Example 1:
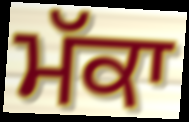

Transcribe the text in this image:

ਮੱਕਾ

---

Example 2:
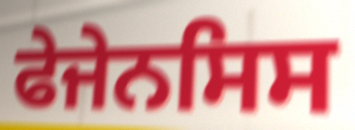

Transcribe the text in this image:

ਫੇਜੇਨਸਿਸ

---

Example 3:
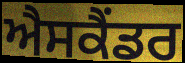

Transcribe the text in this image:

ਐਸਕੈਂਡਰ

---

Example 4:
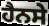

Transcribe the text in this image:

ਹੈਨਸੇ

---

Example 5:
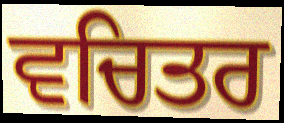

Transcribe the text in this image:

ਵਚਿਤਰ